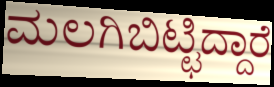
ಮಲಗಿಬಿಟ್ಟಿದ್ದಾರೆ